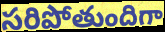
సరిపోతుందిగా